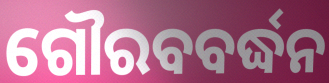
ଗୌରବବର୍ଦ୍ଧନ